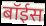
बॉईस